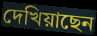
দেখিয়াছেন